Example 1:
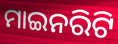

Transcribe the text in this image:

ମାଇନରିଟି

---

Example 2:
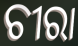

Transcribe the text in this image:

ଚୀରା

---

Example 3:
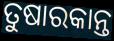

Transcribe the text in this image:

ତୁଷାରକାନ୍ତ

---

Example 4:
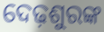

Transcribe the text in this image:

ଦେଢ଼ଶୁରଙ୍କ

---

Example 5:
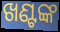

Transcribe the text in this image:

ଖଣ୍ଟଙ୍କ